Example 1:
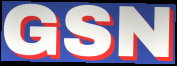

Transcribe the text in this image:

GSN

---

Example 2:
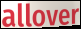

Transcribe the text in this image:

allover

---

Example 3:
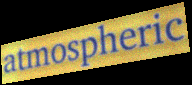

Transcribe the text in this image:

atmospheric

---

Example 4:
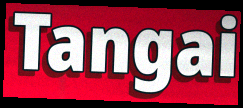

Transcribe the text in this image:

Tangai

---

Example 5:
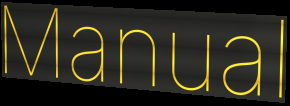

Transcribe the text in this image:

Manual